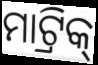
ମାଟ୍ରିକ୍